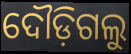
ଦୌଡ଼ିଗଲୁ